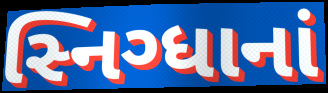
સ્નિગ્ધાનાં